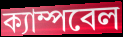
ক্যাম্পবেল